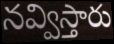
నవ్విస్తారు